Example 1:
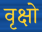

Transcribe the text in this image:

वृक्षो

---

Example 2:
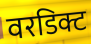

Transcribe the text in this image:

वरडिक्ट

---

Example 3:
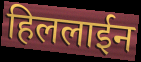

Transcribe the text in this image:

हिललाईन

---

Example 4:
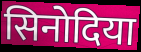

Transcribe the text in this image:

सिनोदिया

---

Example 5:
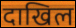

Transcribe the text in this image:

दाखिल